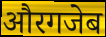
औरगजेब